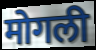
मोगली